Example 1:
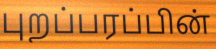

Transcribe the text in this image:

புறப்பரப்பின்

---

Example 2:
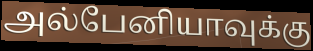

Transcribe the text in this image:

அல்பேனியாவுக்கு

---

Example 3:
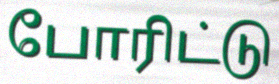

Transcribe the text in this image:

போரிட்டு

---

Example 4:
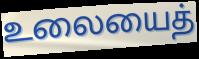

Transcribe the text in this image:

உலையைத்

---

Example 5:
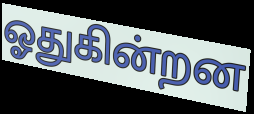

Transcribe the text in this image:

ஓதுகின்றன